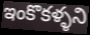
ఇంకొకళ్ళని